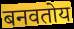
बनवतोय